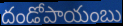
దండోపాయంబు